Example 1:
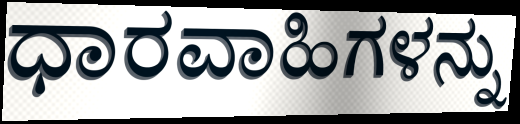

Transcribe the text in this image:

ಧಾರವಾಹಿಗಳನ್ನು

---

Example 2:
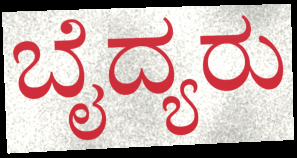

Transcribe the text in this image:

ಬೈದ್ಯರು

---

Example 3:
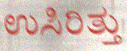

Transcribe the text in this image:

ಉಸಿರಿತ್ತು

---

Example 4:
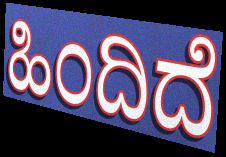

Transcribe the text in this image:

ಹಿಂದಿದೆ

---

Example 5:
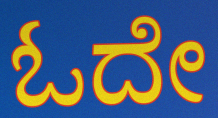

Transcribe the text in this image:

ಓದೇ